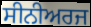
ਸੀਨੀਅਰਜ